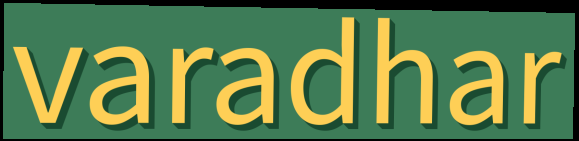
varadhar